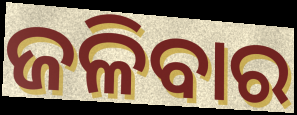
ଜଳିବାର